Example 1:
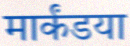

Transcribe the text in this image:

मार्कंडया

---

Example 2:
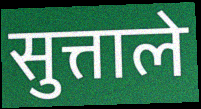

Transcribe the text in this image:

सुत्ताले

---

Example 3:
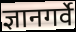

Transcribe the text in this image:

ज्ञानगर्वे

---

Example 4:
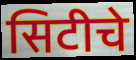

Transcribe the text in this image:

सिटीचे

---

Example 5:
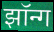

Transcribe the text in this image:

झॉन्ग